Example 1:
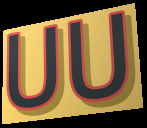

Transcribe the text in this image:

UU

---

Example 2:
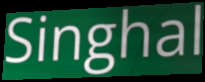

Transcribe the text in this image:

Singhal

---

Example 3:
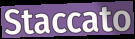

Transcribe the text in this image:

Staccato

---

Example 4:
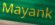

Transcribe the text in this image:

Mayank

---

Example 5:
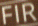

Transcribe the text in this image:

FIR